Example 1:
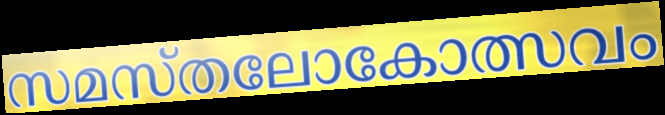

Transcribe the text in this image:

സമസ്തലോകോത്സവം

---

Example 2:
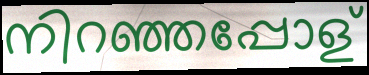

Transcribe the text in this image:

നിറഞ്ഞപ്പോള്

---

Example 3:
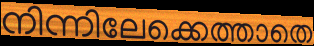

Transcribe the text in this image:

നിന്നിലേക്കെത്താതെ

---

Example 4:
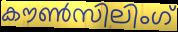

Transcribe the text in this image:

കൗൺസിലിംഗ്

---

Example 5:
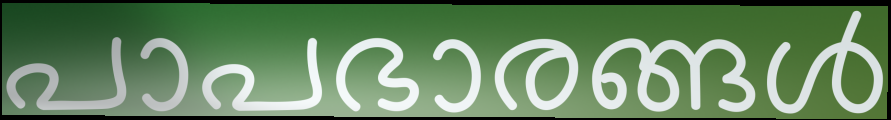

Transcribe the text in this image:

പാപഭാരങ്ങൾ